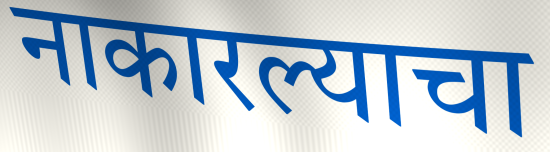
नाकारल्याचा